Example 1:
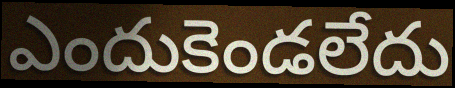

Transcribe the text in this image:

ఎందుకెండలేదు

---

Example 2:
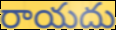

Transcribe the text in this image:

రాయదు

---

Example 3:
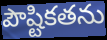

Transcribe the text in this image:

పౌష్టికతను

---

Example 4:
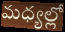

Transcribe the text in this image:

మధ్యల్లో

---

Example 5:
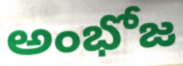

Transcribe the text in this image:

అంభోజ